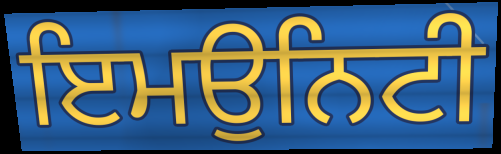
ਇਮਉਨਿਟੀ